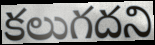
కలుగదని